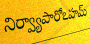
నిర్వ్యాపారోఽహమ్